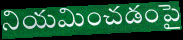
నియమించడంపై